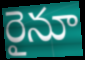
రైనూ